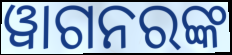
ୱାଗନରଙ୍କ